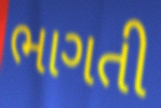
ભાગતી